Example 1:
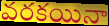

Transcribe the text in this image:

వరకయినా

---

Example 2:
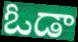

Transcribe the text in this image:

ఓడా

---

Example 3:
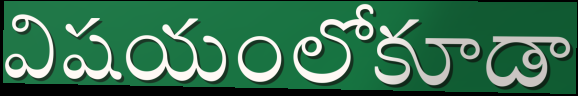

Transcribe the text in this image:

విషయంలోకూడా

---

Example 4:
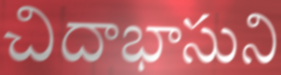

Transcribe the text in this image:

చిదాభాసుని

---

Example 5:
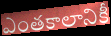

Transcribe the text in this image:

ఎంతకాలానికీ